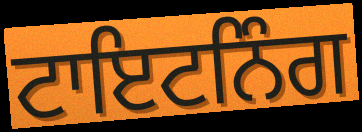
ਟਾਇਟਨਿੰਗ